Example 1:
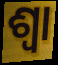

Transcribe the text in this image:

ଶ୍ୱା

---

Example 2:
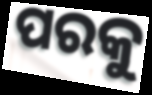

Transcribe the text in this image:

ପରକୁ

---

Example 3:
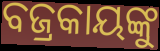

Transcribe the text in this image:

ବଜ୍ରକାୟଙ୍କୁ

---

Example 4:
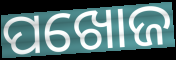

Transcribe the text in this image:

ପଖୋଜ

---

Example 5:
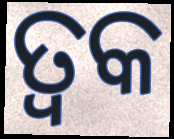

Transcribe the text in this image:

ତ୍ୱକ